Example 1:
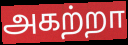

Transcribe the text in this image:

அகற்றா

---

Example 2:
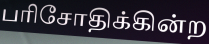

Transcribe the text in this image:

பரிசோதிக்கின்ற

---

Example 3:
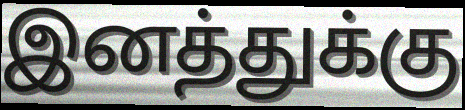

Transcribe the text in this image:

இனத்துக்கு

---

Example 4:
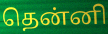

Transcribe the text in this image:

தென்னி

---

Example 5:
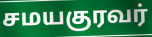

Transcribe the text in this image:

சமயகுரவர்